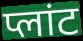
प्लांट